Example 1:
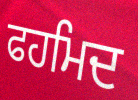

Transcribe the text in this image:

ਫਹਮਿਦ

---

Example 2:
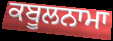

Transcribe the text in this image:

ਕਬੂਲਨਾਮਾ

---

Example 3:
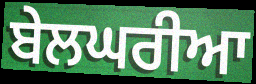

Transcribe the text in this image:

ਬੇਲਘਰੀਆ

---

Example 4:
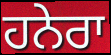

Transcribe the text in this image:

ਹਨੇਰਾ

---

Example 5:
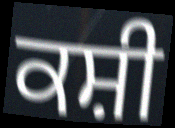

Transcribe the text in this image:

ਕਸ਼ੀ